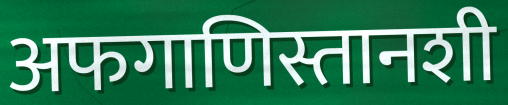
अफगाणिस्तानशी